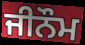
ਜੀਨੌਮ